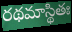
రథమాస్థితః